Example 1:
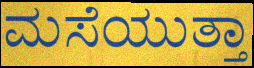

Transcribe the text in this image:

ಮಸೆಯುತ್ತಾ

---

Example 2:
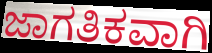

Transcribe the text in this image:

ಜಾಗತಿಕವಾಗಿ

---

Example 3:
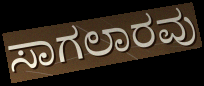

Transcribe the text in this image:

ಸಾಗಲಾರವು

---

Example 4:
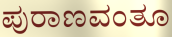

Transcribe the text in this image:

ಪುರಾಣವಂತೂ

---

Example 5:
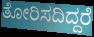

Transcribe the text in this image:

ತೋರಿಸದಿದ್ದರೆ